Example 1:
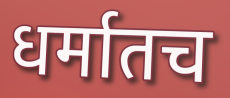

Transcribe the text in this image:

धर्मातच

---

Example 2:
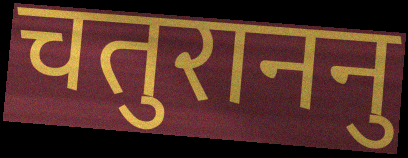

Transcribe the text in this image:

चतुराननु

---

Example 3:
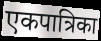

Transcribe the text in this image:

एकपात्रिका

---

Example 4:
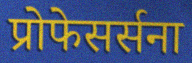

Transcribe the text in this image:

प्रोफेसर्सना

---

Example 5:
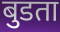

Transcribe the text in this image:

बुडता